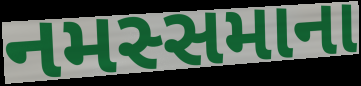
નમસ્સમાના